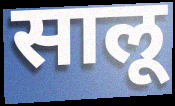
सालू